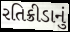
રતિક્રીડાનું